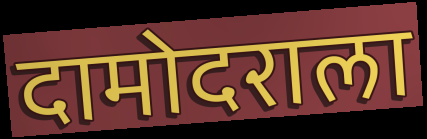
दामोदराला